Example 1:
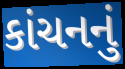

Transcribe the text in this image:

કાંચનનું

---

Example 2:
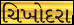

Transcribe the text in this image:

ચિખોદરા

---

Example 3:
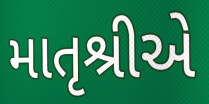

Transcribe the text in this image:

માતૃશ્રીએ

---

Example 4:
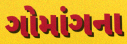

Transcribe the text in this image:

ગોમાંગના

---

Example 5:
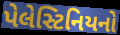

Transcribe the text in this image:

પેલેસ્ટિનિયનો